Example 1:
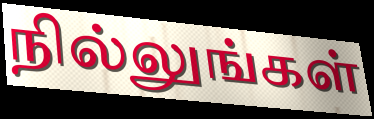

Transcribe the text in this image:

நில்லுங்கள்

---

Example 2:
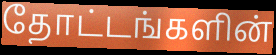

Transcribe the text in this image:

தோட்டங்களின்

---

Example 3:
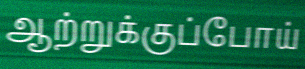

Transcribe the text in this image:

ஆற்றுக்குப்போய்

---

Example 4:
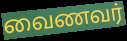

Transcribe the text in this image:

வைணவர்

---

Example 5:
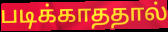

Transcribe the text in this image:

படிக்காததால்